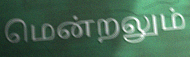
மென்றலும்